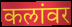
कलांवर